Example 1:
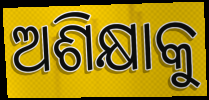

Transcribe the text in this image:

ଅଶିକ୍ଷାକୁ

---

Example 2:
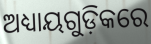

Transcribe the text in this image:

ଅଧ୍ୟାୟଗୁଡ଼ିକରେ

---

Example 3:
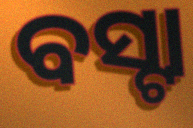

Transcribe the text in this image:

ବସ୍ଟା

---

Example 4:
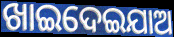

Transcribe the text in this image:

ଖାଇଦେଇଯାଅ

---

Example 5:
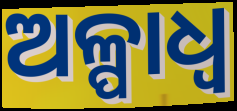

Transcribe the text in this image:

ଅଳ୍ପାଧ୍ଵ